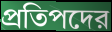
প্রতিপদের